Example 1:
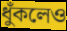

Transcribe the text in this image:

ধুঁকলেও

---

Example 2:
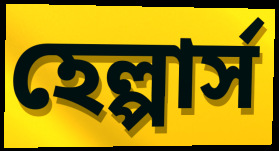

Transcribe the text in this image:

হেল্পার্স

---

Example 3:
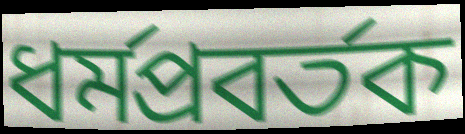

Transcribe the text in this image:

ধর্মপ্রবর্তক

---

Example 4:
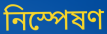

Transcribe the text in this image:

নিস্পেষণ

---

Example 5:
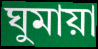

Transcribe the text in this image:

ঘুমায়া